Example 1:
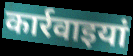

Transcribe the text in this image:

कार्रवाइयां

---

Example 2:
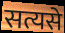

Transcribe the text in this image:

सत्यसे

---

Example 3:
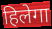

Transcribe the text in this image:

हिलेगा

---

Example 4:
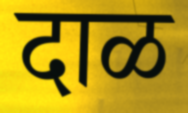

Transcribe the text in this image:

दाळ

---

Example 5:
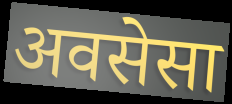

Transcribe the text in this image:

अवसेसा